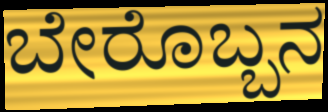
ಬೇರೊಬ್ಬನ